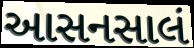
આસનસાલં